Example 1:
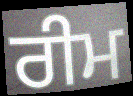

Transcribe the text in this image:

ਰੀਮ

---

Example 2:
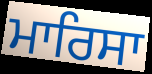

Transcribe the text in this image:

ਮਾਰਿਸਾ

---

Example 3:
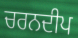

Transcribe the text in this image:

ਚਰਨਦੀਪ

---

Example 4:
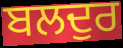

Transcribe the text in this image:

ਬਲਦੁਰ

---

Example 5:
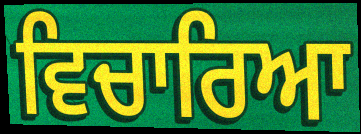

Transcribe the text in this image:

ਵਿਚਾਰਿਆ